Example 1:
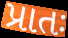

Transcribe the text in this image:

પ્રાતઃ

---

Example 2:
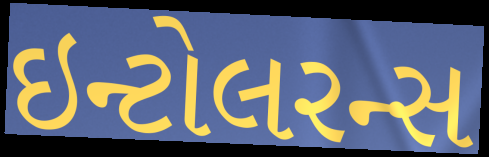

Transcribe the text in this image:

ઇન્ટોલરન્સ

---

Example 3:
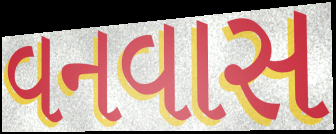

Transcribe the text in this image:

વનવાસ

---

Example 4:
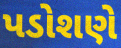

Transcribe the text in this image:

પડોશણે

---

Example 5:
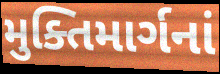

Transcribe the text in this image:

મુક્તિમાર્ગનાં